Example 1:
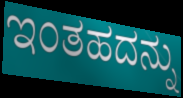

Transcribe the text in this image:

ಇಂತಹದನ್ನು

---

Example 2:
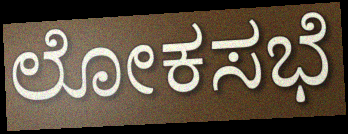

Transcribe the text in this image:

ಲೋಕಸಭೆ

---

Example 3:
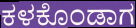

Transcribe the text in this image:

ಕಳಕೊಂಡಾಗ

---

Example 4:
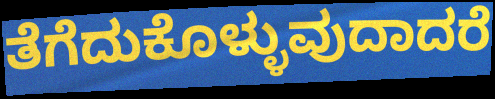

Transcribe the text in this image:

ತೆಗೆದುಕೊಳ್ಳುವುದಾದರೆ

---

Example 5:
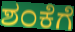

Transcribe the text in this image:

ಶಂಕೆಗೆ